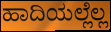
ಹಾದಿಯಲ್ಲೆಲ್ಲ